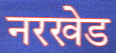
नरखेड